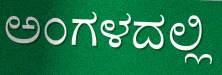
ಅಂಗಳದಲ್ಲಿ